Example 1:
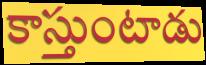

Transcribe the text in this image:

కాస్తుంటాడు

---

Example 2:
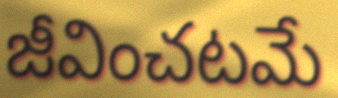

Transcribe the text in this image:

జీవించటమే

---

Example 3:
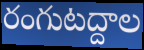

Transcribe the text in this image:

రంగుటద్దాల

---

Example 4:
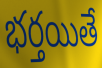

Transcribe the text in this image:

భర్తయితే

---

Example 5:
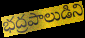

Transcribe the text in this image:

భద్రపాలుడిని